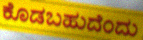
ಕೊಡಬಹುದೆಂದು